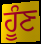
ਹੂੰਣ